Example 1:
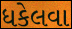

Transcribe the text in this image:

ધકેલવા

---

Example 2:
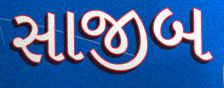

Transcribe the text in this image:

સાજીબ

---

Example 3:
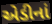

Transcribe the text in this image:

એડીનાં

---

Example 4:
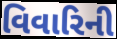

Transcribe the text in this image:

વિવારિની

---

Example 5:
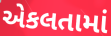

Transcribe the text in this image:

એકલતામાં